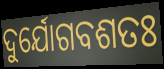
ଦୁର୍ଯୋଗବଶତଃ